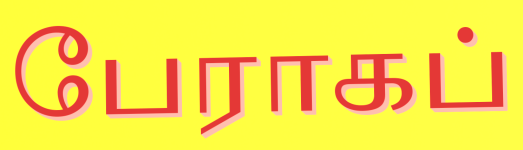
பேராகப்